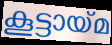
കൂട്ടായ്മ